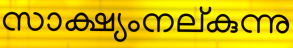
സാക്ഷ്യംനല്കുന്നു